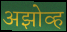
अझोव्ह